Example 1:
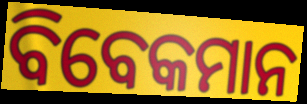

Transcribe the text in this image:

ବିବେକମାନ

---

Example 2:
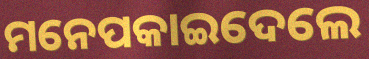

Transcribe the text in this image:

ମନେପକାଇଦେଲେ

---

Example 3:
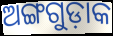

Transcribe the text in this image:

ଅଙ୍ଗଗୁଡ଼ାକ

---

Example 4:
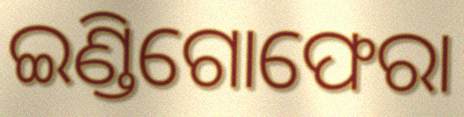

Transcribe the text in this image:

ଇଣ୍ଡିଗୋଫେରା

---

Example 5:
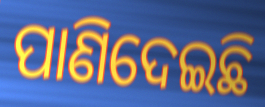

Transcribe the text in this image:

ପାଣିଦେଇଛି